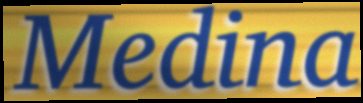
Medina